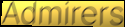
Admirers